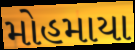
મોહમાયા